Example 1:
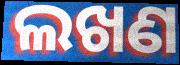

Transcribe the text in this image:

ଲଖଣ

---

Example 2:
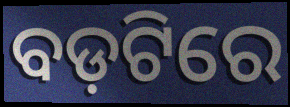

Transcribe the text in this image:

ବଡ଼ଟିରେ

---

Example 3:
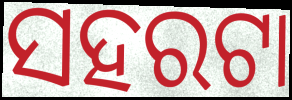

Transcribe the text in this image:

ସହରଟା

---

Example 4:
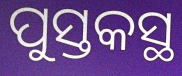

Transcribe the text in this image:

ପୁସ୍ତକସ୍ଥ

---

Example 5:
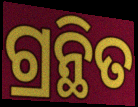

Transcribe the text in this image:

ଗ୍ରନ୍ଥିତ